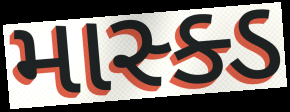
માસ્ક્ડ